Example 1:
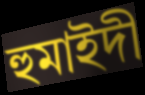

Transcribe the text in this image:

হুমাইদী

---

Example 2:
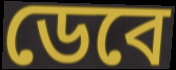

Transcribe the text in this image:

ডেবে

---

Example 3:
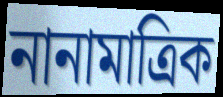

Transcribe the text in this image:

নানামাত্রিক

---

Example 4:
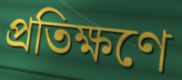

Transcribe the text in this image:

প্রতিক্ষণে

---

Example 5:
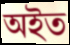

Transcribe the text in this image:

অইত